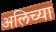
अलिच्या